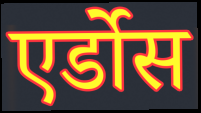
एर्डोस